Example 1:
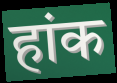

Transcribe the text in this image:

हांक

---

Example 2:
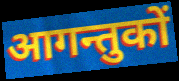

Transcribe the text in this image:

आगन्तुकों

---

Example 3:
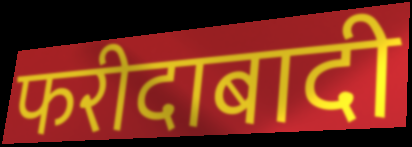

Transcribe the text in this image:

फरीदाबादी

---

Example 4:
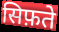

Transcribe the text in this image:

सिफ़ते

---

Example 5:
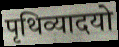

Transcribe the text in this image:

पृथिव्यादयो